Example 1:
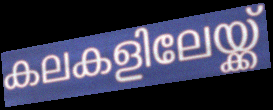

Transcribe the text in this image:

കലകളിലേയ്ക്ക്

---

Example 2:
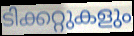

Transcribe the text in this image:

ടിക്കറ്റുകളും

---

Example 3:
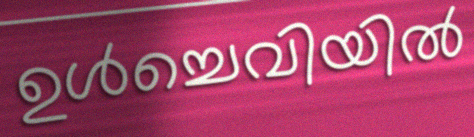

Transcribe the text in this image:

ഉൾച്ചെവിയിൽ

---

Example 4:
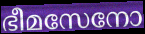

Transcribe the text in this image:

ഭീമസേനോ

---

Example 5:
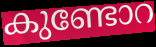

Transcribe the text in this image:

കുണ്ടോറ